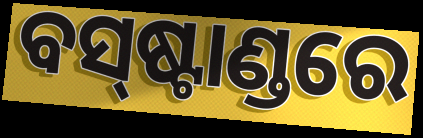
ବସ୍‌ଷ୍ଟାଣ୍ଡରେ